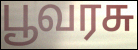
பூவரசு